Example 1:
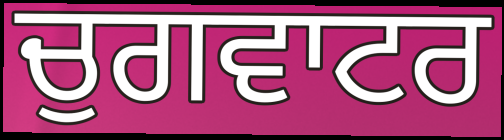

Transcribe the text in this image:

ਚੁਗਵਾਟਰ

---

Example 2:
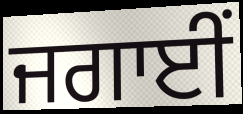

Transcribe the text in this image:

ਜਗਾਈਂ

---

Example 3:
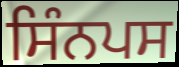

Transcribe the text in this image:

ਸਿੰਨਪਸ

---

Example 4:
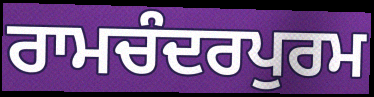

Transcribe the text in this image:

ਰਾਮਚੰਦਰਪੁਰਮ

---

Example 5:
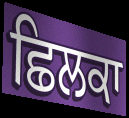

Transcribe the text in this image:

ਛਿਲਕਾ